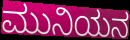
ಮುನಿಯನ